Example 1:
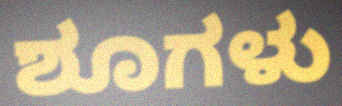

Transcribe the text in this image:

ಶೂಗಳು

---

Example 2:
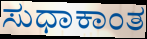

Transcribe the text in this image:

ಸುಧಾಕಾಂತ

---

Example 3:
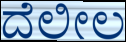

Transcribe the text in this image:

ದೆಲೀಲ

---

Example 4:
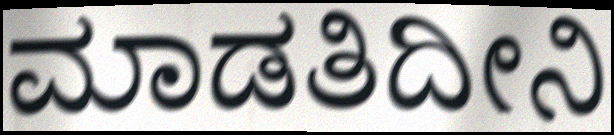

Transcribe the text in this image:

ಮಾಡತಿದೀನಿ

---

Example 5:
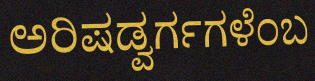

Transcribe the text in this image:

ಅರಿಷಡ್ವರ್ಗಗಳೆಂಬ